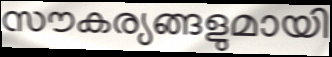
സൗകര്യങ്ങളുമായി